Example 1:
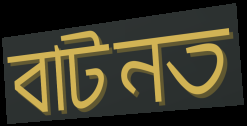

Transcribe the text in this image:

বাটনত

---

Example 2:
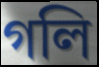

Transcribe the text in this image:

গলি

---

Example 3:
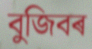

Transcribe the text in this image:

বুজিবৰ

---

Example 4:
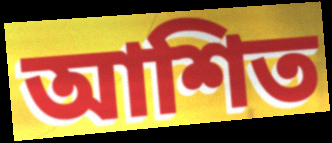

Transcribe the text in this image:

আশিত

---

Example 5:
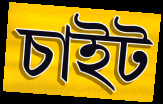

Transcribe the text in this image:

চাইট